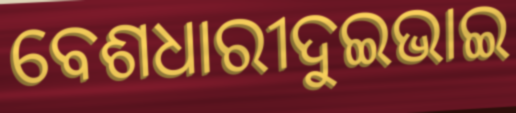
ବେଶଧାରୀଦୁଇଭାଇ